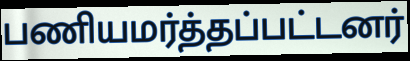
பணியமர்த்தப்பட்டனர்